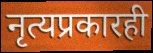
नृत्यप्रकारही